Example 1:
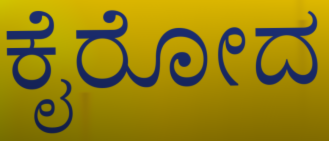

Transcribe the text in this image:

ಕೈರೋದ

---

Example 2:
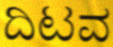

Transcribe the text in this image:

ದಿಟವ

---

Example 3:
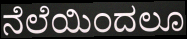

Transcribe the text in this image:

ನೆಲೆಯಿಂದಲೂ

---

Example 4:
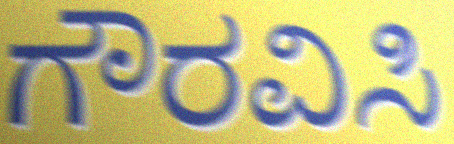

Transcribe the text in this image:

ಗೌರವಿಸಿ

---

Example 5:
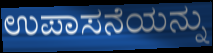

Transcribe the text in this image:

ಉಪಾಸನೆಯನ್ನು